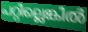
പറ്റില്ലെങ്കിൽ